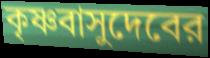
কৃষ্ণবাসুদেবের